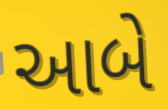
આબે